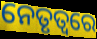
ନେତୃତ୍ଵରେ